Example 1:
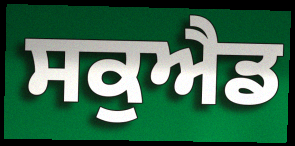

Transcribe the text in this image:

ਸਕੁਐਡ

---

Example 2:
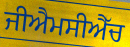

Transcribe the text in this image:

ਜੀਐਮਸੀਐੱਚ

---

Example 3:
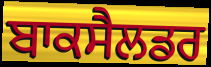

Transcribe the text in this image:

ਬਾਕਸੈਲਡਰ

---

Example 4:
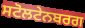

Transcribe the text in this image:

ਸਟੋਲਟੇਨਬਰਗ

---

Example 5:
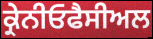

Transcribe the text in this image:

ਕ੍ਰੇਨੀਓਫੈਸੀਅਲ